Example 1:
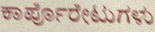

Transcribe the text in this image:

ಕಾರ್ಪೊರೇಟುಗಳು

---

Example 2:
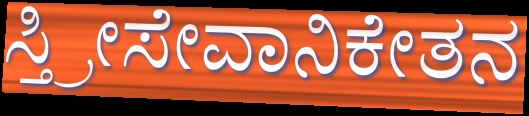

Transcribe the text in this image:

ಸ್ತ್ರೀಸೇವಾನಿಕೇತನ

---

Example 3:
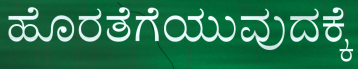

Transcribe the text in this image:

ಹೊರತೆಗೆಯುವುದಕ್ಕೆ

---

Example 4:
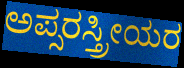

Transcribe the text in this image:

ಅಪ್ಸರಸ್ತ್ರೀಯರ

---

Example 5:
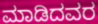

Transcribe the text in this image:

ಮಾಡಿದವರ